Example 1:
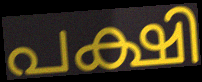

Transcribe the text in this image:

പക്ഷി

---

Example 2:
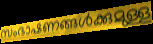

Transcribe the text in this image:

സംഭാഷണങ്ങൾക്കുമുള്ള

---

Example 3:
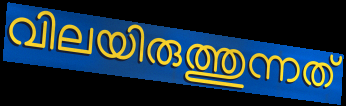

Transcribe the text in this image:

വിലയിരുത്തുന്നത്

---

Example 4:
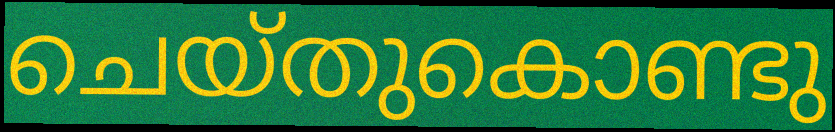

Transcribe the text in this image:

ചെയ്തുകൊണ്ടു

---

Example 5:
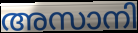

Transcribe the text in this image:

അസാനി